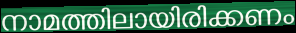
നാമത്തിലായിരിക്കണം